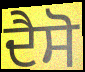
ਦੈਸੋ